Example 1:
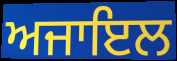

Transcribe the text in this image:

ਅਜਾਇਲ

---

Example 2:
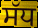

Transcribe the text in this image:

ਸੱਧ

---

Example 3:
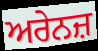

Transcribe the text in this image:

ਅਰੇਨਜ਼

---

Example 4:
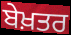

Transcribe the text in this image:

ਬੇਖ਼ਤਰ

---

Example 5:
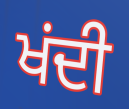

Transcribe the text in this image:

ਖਂਦੀ